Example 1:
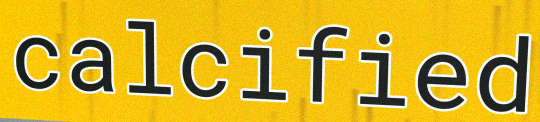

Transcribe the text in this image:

calcified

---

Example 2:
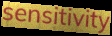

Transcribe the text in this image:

sensitivity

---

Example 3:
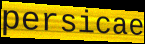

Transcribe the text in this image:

persicae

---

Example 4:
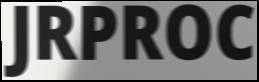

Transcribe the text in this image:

JRPROC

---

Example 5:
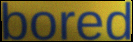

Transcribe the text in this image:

bored